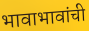
भावाभावांची